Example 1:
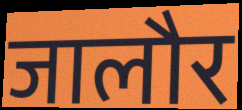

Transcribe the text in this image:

जालौर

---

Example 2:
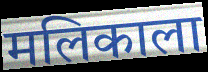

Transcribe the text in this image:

मलिकाला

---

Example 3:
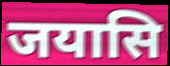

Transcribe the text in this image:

जयासि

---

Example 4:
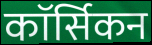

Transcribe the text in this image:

कॉर्सिकन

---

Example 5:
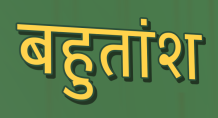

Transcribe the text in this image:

बहुतांश